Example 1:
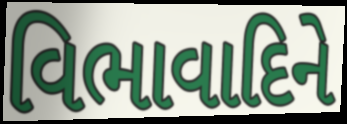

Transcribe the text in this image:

વિભાવાદિને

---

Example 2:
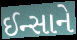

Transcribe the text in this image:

ઈન્સાને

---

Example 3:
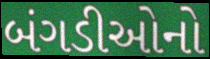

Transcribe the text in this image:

બંગડીઓનો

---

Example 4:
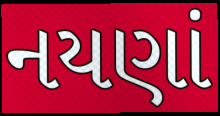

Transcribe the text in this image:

નયણાં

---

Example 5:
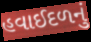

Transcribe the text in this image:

હવાઈદળનું